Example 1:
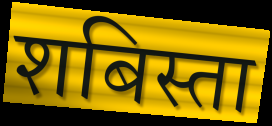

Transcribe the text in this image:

शबिस्ता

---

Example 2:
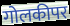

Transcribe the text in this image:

गोलकीपर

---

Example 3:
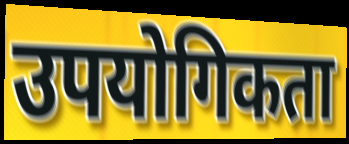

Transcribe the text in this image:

उपयोगिकता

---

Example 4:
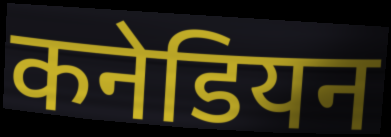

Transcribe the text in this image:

कनेडियन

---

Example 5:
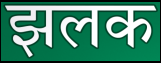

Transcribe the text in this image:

झलक